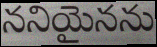
ననియైనను